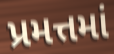
પ્રમત્તમાં